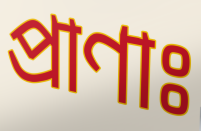
প্রাণাঃ